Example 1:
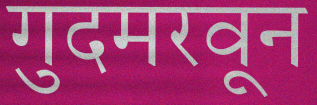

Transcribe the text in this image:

गुदमरवून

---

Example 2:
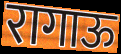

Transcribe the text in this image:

रागाऊ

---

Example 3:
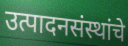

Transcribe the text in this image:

उत्पादनसंस्थांचे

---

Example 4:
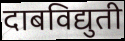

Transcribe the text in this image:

दाबविद्युती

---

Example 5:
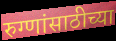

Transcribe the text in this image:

रुग्णांसाठीच्या